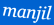
manjil